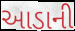
આડાની